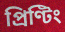
প্ৰিণ্টিং